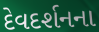
દેવદર્શનના